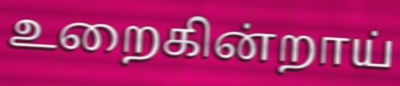
உறைகின்றாய்